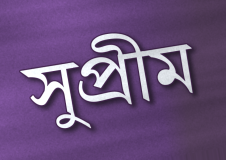
সুপ্ৰীম